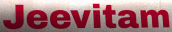
Jeevitam